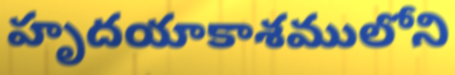
హృదయాకాశములోని